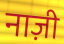
नाज़ी